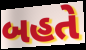
બહતે